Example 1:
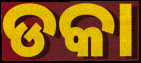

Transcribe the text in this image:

ଡକା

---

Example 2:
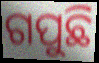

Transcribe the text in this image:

ଗପୁଛି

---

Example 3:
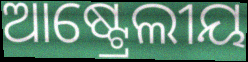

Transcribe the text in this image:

ଆଷ୍ଟ୍ରେଲୀୟ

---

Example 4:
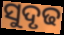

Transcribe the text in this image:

ସୁଦୃଢ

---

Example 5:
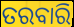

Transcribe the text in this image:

ତରବାରି